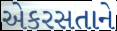
એકરસતાને